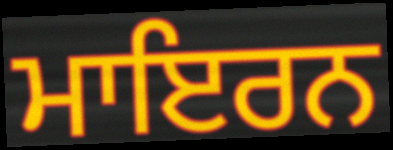
ਮਾਇਰਨ